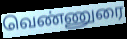
வெண்ணுரை